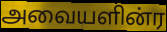
அவையளின்ர